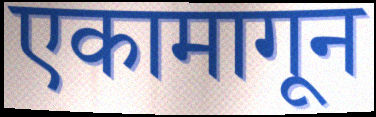
एकामागून